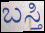
ಬಸ್ತಿ